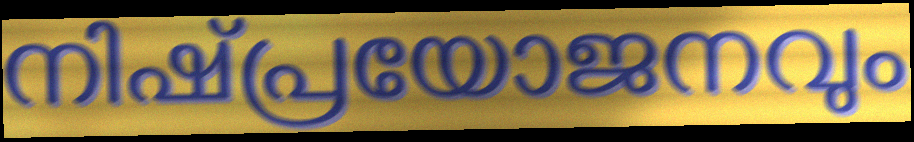
നിഷ്പ്രയോജനവും